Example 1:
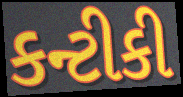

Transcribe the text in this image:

કન્ટીકી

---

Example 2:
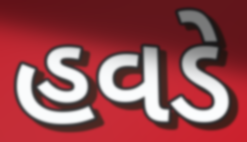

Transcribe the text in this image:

હવડે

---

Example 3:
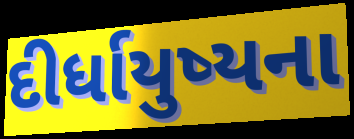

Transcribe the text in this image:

દીર્ધાયુષ્યના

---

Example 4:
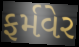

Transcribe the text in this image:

ફર્મવેર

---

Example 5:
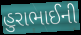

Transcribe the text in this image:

હુરાભાઈની